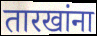
तारखांना